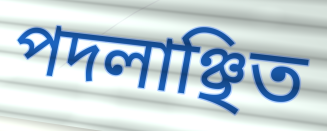
পদলাঞ্ছিত